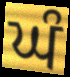
ਘੰ